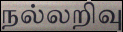
நல்லறிவு